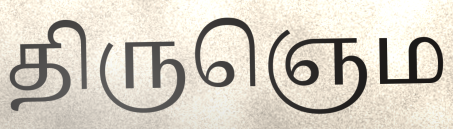
திருஞெம